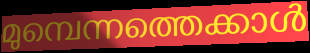
മുമ്പെന്നത്തെക്കാൾ